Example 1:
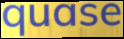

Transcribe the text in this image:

quase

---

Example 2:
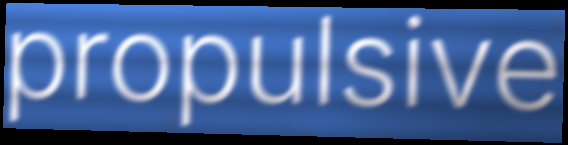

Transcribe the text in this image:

propulsive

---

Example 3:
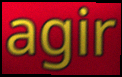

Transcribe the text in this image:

agir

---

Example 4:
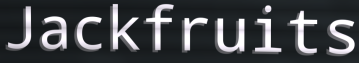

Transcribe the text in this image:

Jackfruits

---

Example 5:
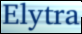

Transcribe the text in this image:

Elytra